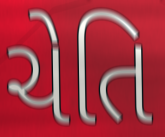
ચેતિ